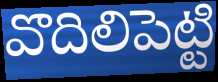
వొదిలిపెట్టి